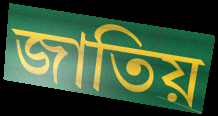
জাতিয়